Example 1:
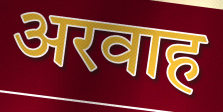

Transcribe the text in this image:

अरवाह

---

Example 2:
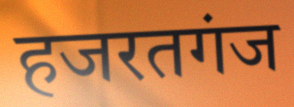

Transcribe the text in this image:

हजरतगंज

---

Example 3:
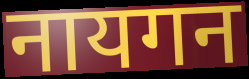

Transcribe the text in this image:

नायगन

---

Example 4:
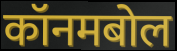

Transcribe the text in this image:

कॉनमबोल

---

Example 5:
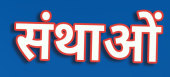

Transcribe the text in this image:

संथाओं